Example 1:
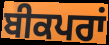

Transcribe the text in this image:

ਬੀਕਪਰਾਂ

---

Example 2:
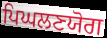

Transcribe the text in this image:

ਪਿਘਲਣਯੋਗ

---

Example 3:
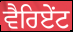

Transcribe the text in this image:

ਵੈਰਿਏਂਟ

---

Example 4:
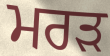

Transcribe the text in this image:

ਮਰੜ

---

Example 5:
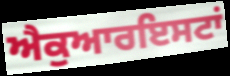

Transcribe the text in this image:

ਐਕੁਆਰਇਸਟਾਂ